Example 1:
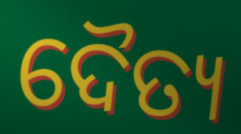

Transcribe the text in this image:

ଦୈତ୍ୟ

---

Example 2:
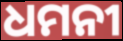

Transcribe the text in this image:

ଧମନୀ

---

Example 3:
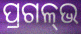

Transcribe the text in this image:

ପ୍ରଗଳ୍‌ଭ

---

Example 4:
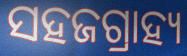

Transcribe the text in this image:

ସହଜଗ୍ରାହ୍ୟ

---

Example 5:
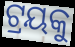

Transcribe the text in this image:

ଟ୍ରୟକୁ